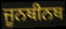
ਜੂਨਥੀਨਥ